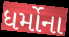
ધર્મોના